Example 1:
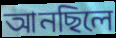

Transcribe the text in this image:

আনছিলে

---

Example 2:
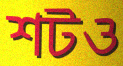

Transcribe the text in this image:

শটও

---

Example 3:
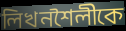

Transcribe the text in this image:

লিখনশৈলীকে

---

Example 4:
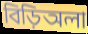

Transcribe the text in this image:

বিড়িঅলা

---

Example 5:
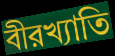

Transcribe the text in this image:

বীরখ্যাতি